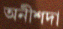
অনীশদা